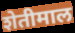
शेतीमाल